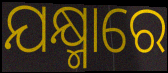
ଯକ୍ଷ୍ମାରେ